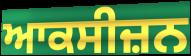
ਆਕਸੀਜ਼ਨ